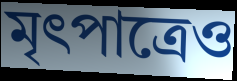
মৃৎপাত্রেও